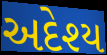
અદેશ્ય